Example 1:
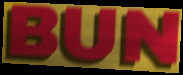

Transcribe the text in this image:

BUN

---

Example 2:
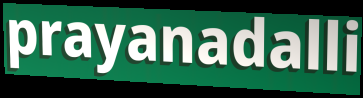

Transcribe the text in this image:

prayanadalli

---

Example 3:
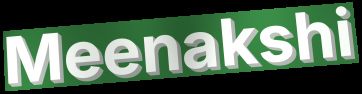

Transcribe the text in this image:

Meenakshi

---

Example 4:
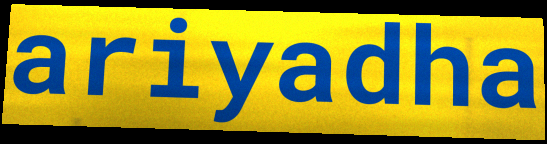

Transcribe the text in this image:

ariyadha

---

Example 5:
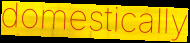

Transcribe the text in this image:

domestically